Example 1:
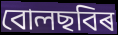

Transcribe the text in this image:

বোলছবিৰ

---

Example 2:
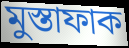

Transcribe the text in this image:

মুস্তাফাক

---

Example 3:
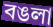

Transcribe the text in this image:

বঙলা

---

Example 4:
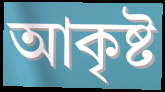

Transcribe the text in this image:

আকৃষ্ট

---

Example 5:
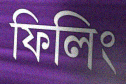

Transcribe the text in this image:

ফিলিং